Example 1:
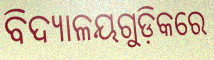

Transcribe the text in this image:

ବିଦ୍ୟାଳୟଗୁଡ଼ିକରେ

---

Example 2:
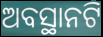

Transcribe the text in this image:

ଅବସ୍ଥାନଟି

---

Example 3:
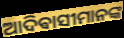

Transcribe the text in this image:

ଆଦିଵାସୀମାନଙ୍କ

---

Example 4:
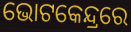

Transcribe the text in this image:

ଭୋଟକେନ୍ଦ୍ରରେ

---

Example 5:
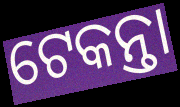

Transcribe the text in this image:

ଟେକନ୍ତା